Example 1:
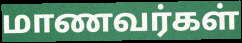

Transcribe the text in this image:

மாணவர்கள்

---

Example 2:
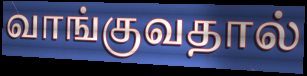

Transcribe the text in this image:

வாங்குவதால்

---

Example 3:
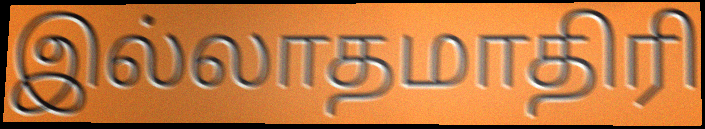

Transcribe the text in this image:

இல்லாதமாதிரி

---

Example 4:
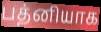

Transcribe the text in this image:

பத்னியாக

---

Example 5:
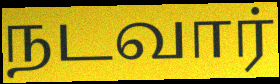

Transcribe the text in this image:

நடவார்